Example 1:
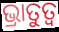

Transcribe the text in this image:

ଭ୍ରାତୁତ୍ଵ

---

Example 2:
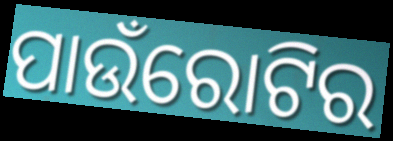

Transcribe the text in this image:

ପାଉଁରୋଟିର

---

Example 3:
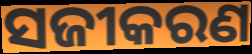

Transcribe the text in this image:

ସଜୀକରଣ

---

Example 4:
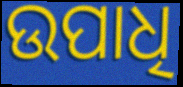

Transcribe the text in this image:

ଉପାଧି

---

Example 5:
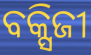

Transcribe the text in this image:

ବକ୍ସିଜୀ